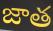
జాత